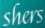
shers